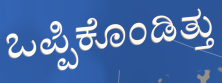
ಒಪ್ಪಿಕೊಂಡಿತ್ತು